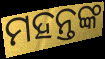
ମହନ୍ତଙ୍କ